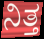
ನಿತ್ತ